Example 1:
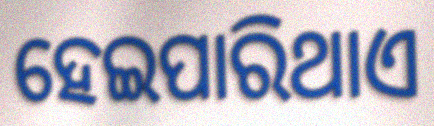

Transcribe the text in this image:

ହେଇପାରିଥାଏ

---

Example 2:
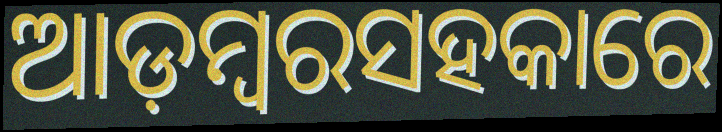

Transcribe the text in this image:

ଆଡ଼ମ୍ବରସହକାରେ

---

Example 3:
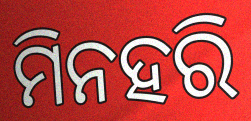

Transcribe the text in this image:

ମିନହରି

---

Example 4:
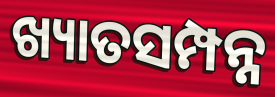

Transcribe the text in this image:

ଖ୍ୟାତସମ୍ପନ୍ନ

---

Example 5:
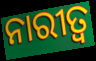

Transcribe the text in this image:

ନାରୀତ୍ୱ